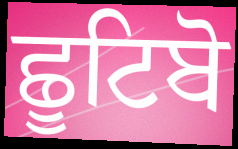
ਛੂਟਿਬੋ